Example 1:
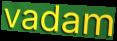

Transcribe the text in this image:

vadam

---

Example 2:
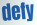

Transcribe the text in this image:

defy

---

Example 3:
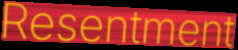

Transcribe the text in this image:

Resentment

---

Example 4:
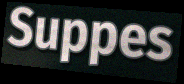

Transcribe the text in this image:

Suppes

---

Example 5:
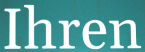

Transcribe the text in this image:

Ihren